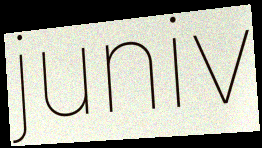
juniv